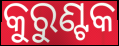
କୁରୁଣ୍ଟକ